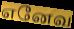
எனேவ